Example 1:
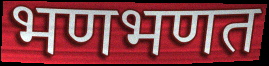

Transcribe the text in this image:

भणभणत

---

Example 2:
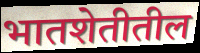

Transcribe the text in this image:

भातशेतीतील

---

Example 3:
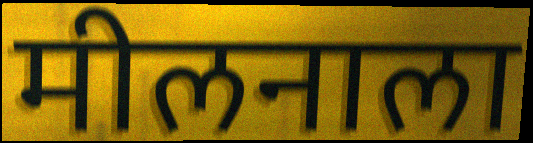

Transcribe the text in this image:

मीलनाला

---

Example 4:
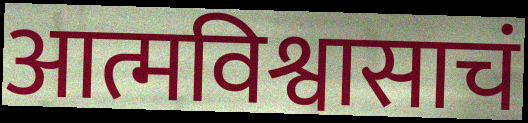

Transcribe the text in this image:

आत्मविश्वासाचं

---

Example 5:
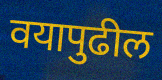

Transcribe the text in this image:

वयापुढील